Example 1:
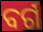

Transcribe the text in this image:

ବର୍ଗ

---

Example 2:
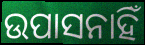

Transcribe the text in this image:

ଉପାସନାହିଁ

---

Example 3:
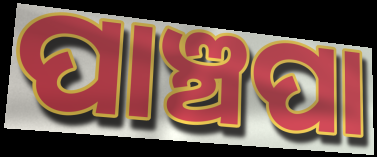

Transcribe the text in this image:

ପାଞ୍ଚପା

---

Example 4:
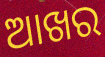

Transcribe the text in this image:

ଆଖର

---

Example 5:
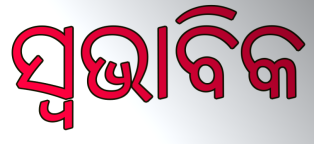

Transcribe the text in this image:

ସ୍ୱଭାବିକ